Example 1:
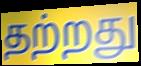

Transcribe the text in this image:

தற்றது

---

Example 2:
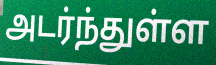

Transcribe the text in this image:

அடர்ந்துள்ள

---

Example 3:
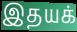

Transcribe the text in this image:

இதயக்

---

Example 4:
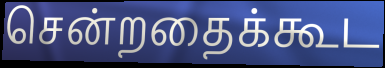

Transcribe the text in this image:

சென்றதைக்கூட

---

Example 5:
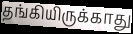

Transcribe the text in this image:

தங்கியிருக்காது